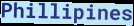
Phillipines